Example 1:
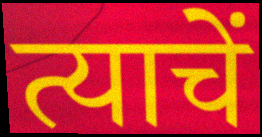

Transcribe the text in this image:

त्याचें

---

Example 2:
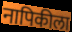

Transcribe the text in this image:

नापिकीला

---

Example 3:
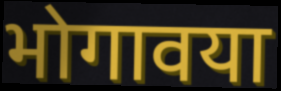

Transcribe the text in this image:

भोगावया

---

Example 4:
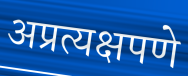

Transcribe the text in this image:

अप्रत्यक्षपणे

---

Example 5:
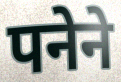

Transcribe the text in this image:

पनेने